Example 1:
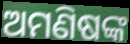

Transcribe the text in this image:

ଅମଣିଷଙ୍କ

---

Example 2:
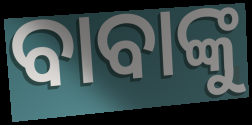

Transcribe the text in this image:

ବାବାଙ୍କୁ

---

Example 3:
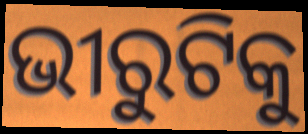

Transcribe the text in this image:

ଭୀରୁଟିକୁ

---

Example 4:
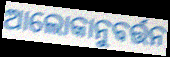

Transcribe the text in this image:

ଆଲୋକାନୁବର୍ତ୍ତନ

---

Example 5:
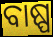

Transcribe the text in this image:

ବାଷ୍ପ